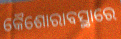
କୈଶୋରାବସ୍ଥାରେ